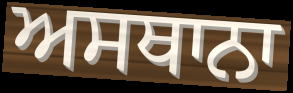
ਅਸਥਾਨਾ